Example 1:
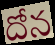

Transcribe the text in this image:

దోన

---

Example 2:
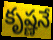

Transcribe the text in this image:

కృష్ణనే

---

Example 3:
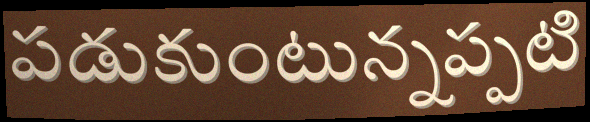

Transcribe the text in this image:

పడుకుంటున్నప్పటి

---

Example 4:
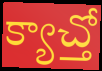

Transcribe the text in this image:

క్యాచ్తో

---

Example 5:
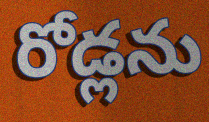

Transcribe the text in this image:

రోడ్లను